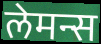
लेमन्स